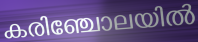
കരിഞ്ചോലയിൽ